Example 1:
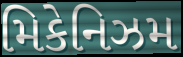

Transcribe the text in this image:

મિકેનિઝમ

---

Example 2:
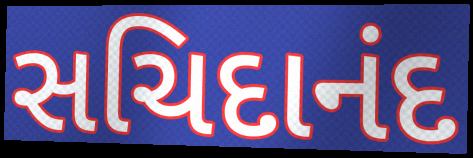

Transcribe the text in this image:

સચિદાનંદ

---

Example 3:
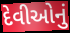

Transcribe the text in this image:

દેવીઓનું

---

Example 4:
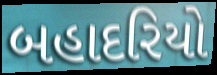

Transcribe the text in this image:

બહાદરિયો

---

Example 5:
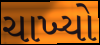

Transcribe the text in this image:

ચાખ્યો